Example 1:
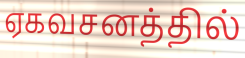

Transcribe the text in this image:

ஏகவசனத்தில்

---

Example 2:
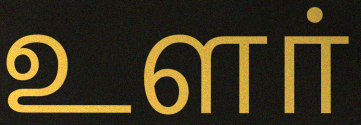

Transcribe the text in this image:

உளர்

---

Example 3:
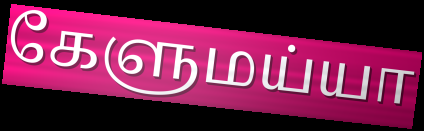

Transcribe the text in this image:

கேளுமய்யா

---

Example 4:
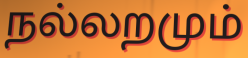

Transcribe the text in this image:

நல்லறமும்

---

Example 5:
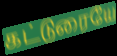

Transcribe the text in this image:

கட்டுரையே